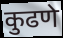
कुढणे